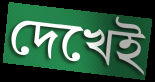
দেখেই